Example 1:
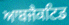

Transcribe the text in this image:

ਆਬਜੈਕਟਿਡ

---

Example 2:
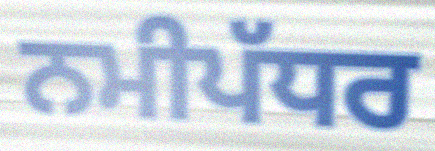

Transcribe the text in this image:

ਨਮੀਪੱਧਰ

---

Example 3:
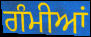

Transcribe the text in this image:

ਗੰਮੀਆਂ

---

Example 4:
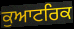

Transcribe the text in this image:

ਕੁਆਟਰਿਕ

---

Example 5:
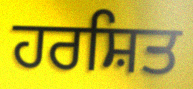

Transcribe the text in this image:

ਹਰਸ਼ਿਤ